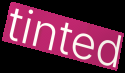
tinted